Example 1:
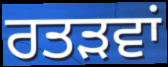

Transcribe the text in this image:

ਰਤੜਵਾਂ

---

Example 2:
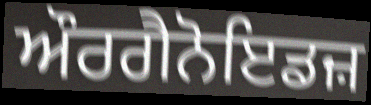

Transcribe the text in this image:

ਔਰਗੈਨੋਇਡਜ਼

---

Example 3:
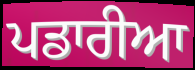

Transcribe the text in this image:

ਪਡਾਰੀਆ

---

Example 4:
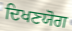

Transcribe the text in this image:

ਦਿਖਣਯੋਗ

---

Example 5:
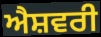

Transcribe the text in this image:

ਐਸ਼ਵਰੀ